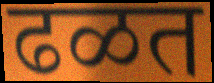
ढळत